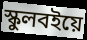
স্কুলবইয়ে